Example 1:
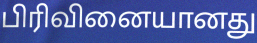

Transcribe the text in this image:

பிரிவினையானது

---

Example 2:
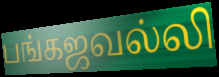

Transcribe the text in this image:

பங்கஜவல்லி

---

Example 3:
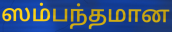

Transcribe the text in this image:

ஸம்பந்தமான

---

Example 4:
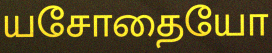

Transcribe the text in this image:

யசோதையோ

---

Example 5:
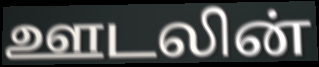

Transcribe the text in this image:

ஊடலின்